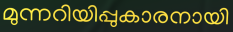
മുന്നറിയിപ്പുകാരനായി